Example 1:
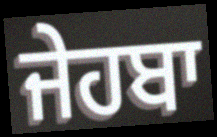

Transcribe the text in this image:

ਜੇਹਬਾ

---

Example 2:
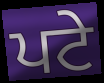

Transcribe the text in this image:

ਪਟੇ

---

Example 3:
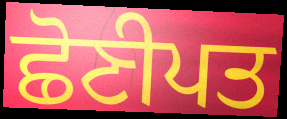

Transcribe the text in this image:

ਛੋਣੀਪਤ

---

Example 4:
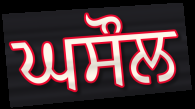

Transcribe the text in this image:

ਘਸੌਲ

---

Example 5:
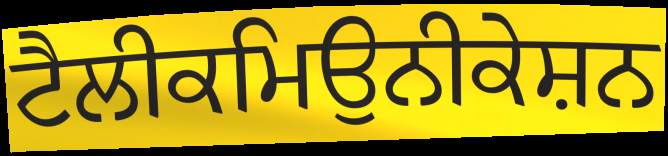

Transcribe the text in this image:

ਟੈਲੀਕਮਿਉਨੀਕੇਸ਼ਨ